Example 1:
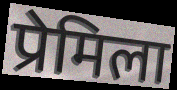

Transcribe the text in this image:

प्रेमिला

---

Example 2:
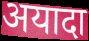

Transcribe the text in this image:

अयादा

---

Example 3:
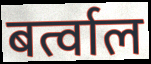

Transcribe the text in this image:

बर्त्वाल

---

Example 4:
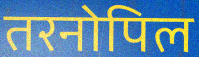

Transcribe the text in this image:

तरनोपिल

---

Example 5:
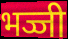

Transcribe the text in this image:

भज्जी